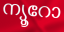
ന്യൂറോ